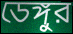
ডেঙ্গুর